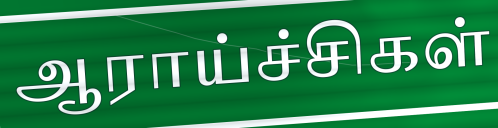
ஆராய்ச்சிகள்